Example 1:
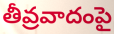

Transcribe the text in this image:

తీవ్రవాదంపై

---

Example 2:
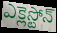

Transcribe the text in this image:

ఎక్లెస్టోన్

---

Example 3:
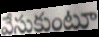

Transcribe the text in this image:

వేసుకుంటూ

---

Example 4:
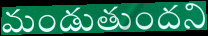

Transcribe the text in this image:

మండుతుందని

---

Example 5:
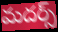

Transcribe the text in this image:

మదర్స్